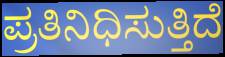
ಪ್ರತಿನಿಧಿಸುತ್ತಿದೆ